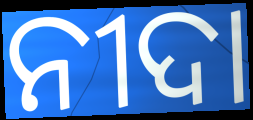
ନୀଦା